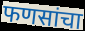
फणसांचा